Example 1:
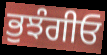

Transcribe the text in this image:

ਭੁਝੰਗੀਓ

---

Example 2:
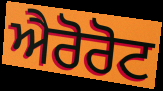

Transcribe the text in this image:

ਐਰੋਰੋਟ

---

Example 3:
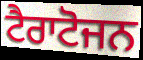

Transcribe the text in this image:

ਟੈਰਾਟੋਜਨ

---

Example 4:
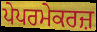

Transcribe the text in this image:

ਪੇਪਰਮੇਕਰਜ਼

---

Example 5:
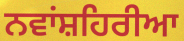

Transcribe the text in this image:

ਨਵਾਂਸ਼ਹਿਰੀਆ